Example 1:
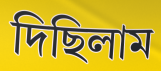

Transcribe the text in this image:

দিছিলাম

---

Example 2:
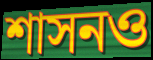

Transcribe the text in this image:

শাসনও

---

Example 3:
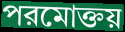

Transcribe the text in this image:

পরমোক্তয়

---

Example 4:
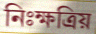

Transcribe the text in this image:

নিঃক্ষত্রিয়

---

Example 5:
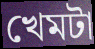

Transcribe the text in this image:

খেমটা